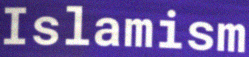
Islamism